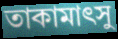
তাকামাৎসু